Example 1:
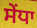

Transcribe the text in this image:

ਸੇਂਧਾ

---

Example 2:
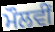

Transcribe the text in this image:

ਮੌਲਵੀਂ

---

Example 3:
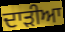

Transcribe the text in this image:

ਦਾੜੀਆ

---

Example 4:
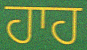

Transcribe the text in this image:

ਹਾਹ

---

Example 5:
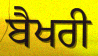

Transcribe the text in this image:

ਬੈਖਰੀ